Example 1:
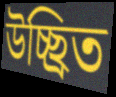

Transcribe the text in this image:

উচ্ছ্রিত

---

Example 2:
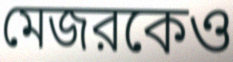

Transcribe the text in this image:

মেজরকেও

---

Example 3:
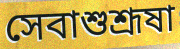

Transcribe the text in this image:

সেবাশুশ্রূষা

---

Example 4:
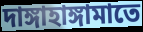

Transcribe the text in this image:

দাঙ্গাহাঙ্গামাতে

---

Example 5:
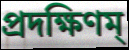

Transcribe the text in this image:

প্রদক্ষিণম্